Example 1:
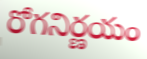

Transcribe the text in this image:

రోగనిర్ణయం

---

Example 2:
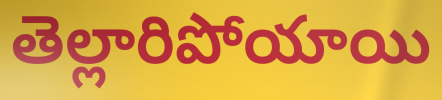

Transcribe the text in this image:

తెల్లారిపోయాయి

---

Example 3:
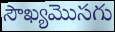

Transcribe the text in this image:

సౌఖ్యమొసగు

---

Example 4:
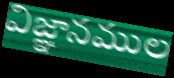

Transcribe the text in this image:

విజ్ఞానముల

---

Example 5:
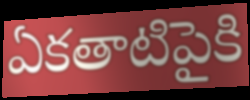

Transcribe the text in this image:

ఏకతాటిపైకి